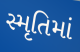
સ્મૃતિમાં